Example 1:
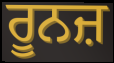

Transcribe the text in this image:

ਰੂਨਜ਼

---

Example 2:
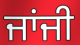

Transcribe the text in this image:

ਜਾਂਜੀ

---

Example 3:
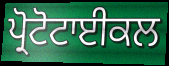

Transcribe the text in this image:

ਪ੍ਰੋਟੋਟਾਈਕਲ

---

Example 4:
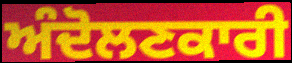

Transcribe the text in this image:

ਅੰਦੋਲਣਕਾਰੀ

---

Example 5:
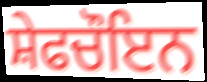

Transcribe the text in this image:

ਸ਼ੇਫਚੌਇਨ